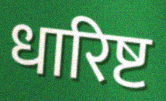
धारिष्ट